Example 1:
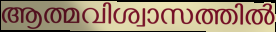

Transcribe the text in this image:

ആത്മവിശ്വാസത്തിൽ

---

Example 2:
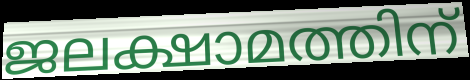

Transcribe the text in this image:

ജലക്ഷാമത്തിന്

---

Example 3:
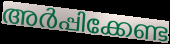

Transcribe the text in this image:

അർപ്പിക്കേണ്ട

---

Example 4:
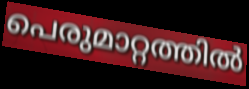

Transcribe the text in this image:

പെരുമാറ്റത്തിൽ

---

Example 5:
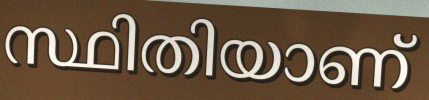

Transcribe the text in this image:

സ്ഥിതിയാണ്